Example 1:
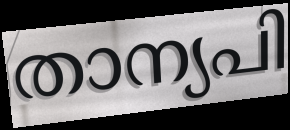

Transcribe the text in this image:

താന്യപി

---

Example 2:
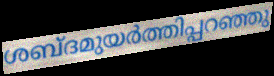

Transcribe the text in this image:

ശബ്ദമുയർത്തിപ്പറഞ്ഞു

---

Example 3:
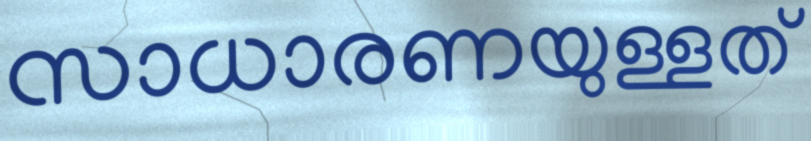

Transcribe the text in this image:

സാധാരണയുള്ളത്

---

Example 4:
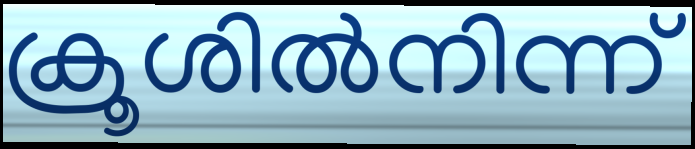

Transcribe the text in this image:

ക്രൂശിൽനിന്ന്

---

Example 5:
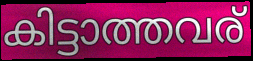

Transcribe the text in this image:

കിട്ടാത്തവര്